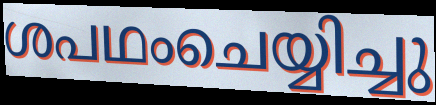
ശപഥംചെയ്യിച്ചു